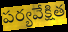
పర్యవేక్షిత